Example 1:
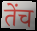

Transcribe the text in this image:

तेंच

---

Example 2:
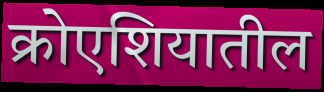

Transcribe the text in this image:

क्रोएशियातील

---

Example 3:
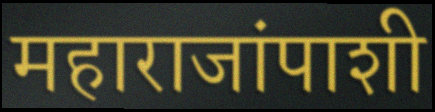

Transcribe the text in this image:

महाराजांपाशी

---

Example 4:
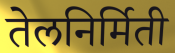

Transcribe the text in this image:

तेलनिर्मिती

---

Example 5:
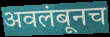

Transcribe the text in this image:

अवलंबूनच